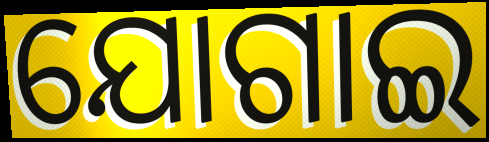
ଯୋଗାଇ